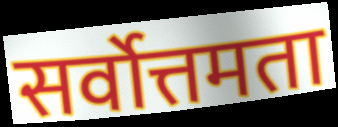
सर्वोत्तमता